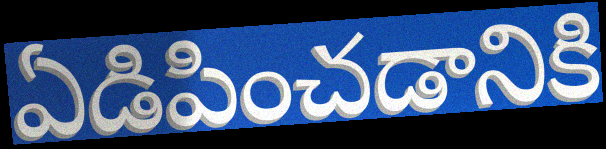
ఏడిపించడానికి